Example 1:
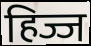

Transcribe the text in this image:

हिज्ज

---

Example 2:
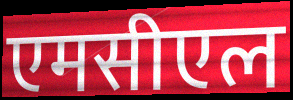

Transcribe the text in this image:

एमसीएल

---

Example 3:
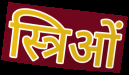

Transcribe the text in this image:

स्त्रिओं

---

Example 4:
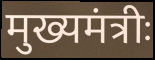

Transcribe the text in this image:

मुख्यमंत्रीः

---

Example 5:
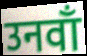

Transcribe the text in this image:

उनवाँ